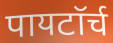
पायटॉर्च